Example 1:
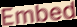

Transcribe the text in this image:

Embed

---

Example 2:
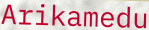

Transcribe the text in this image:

Arikamedu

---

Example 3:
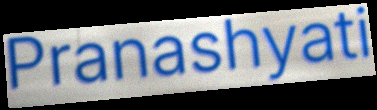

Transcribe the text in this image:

Pranashyati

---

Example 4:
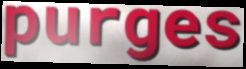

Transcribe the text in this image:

purges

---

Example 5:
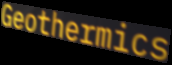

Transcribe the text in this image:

Geothermics